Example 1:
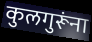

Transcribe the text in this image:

कुलगुरूंना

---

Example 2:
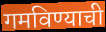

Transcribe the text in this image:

गमविण्याची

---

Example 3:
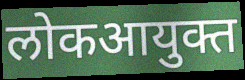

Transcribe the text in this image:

लोकआयुक्त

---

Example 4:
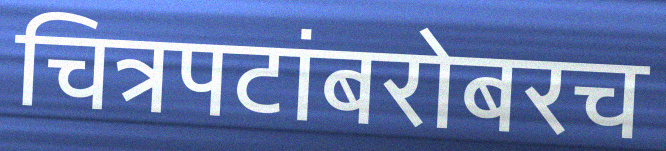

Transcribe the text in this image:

चित्रपटांबरोबरच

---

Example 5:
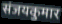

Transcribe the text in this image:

संजयकुमार